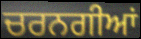
ਚਰਨਗੀਆਂ